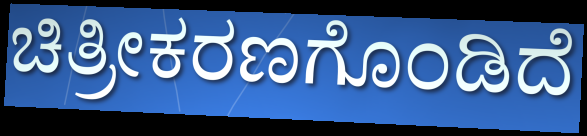
ಚಿತ್ರೀಕರಣಗೊಂಡಿದೆ